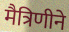
मैत्रिणीने